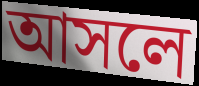
আসলে